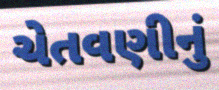
ચેતવણીનું